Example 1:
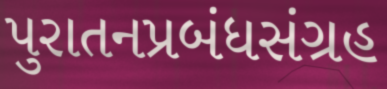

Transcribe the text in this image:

પુરાતનપ્રબંધસંગ્રહ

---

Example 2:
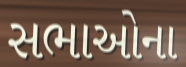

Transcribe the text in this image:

સભાઓના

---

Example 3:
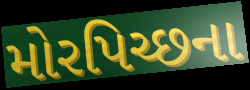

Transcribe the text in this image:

મોરપિચ્છના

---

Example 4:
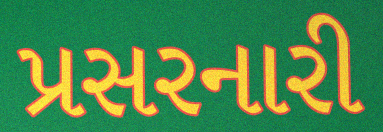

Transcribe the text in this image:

પ્રસરનારી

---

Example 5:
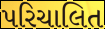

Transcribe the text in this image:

પરિચાલિત